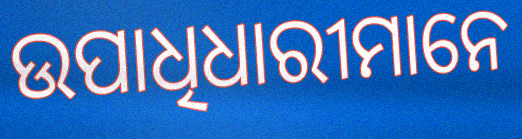
ଉପାଧିଧାରୀମାନେ